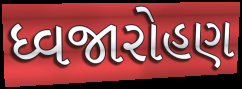
ધ્વજારોહણ